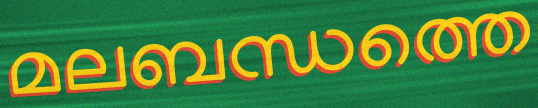
മലബന്ധത്തെ